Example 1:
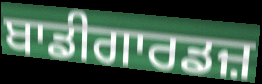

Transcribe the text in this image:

ਬਾਡੀਗਾਰਡਜ਼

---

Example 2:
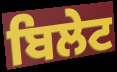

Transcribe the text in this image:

ਬਿਲੇਟ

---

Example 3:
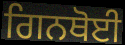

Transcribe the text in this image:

ਗਿਨਥੋਈ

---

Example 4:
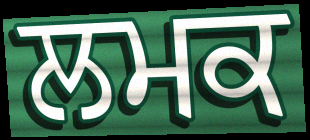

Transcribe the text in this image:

ਲਮਕ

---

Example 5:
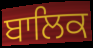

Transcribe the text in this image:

ਬਾਲਿਕ